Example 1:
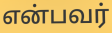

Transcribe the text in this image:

என்பவர்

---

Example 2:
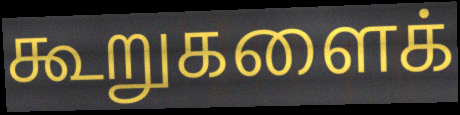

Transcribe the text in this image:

கூறுகளைக்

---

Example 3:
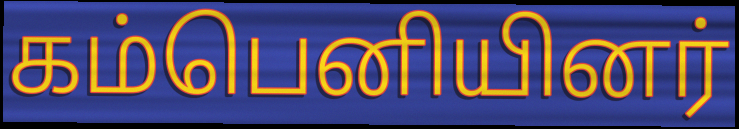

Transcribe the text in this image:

கம்பெனியினர்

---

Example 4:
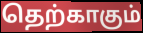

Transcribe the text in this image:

தெற்காகும்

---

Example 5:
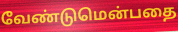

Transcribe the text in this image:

வேண்டுமென்பதை